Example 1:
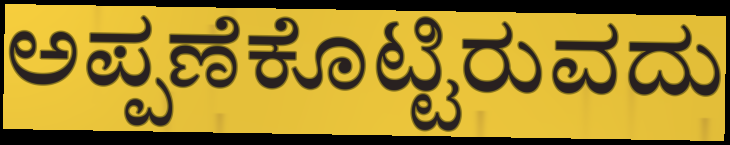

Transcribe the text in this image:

ಅಪ್ಪಣೆಕೊಟ್ಟಿರುವದು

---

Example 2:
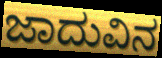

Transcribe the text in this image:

ಜಾದುವಿನ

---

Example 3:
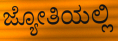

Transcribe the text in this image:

ಜ್ಯೋತಿಯಲ್ಲಿ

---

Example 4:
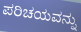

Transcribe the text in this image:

ಪರಿಚಯವನ್ನು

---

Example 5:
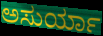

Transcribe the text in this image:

ಅಸುರ್ಯಾ